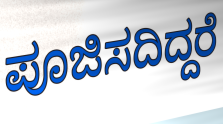
ಪೂಜಿಸದಿದ್ದರೆ